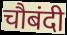
चौबंदी